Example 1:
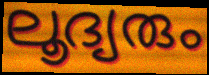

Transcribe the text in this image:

ലൂദ്യരും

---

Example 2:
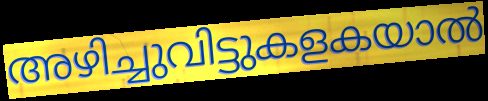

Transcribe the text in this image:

അഴിച്ചുവിട്ടുകളകയാൽ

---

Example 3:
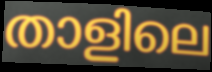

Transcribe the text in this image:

താളിലെ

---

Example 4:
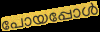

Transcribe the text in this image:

പോയപ്പോൾ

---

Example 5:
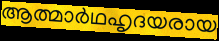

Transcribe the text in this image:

ആത്മാർഥഹൃദയരായ